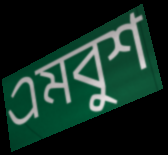
এমবুশ